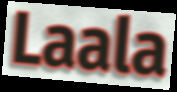
Laala